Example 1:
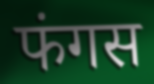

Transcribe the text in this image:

फंगस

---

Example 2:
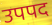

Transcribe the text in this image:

उपपद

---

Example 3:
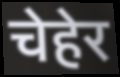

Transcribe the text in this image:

चेहेर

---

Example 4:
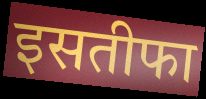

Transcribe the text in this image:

इसतीफा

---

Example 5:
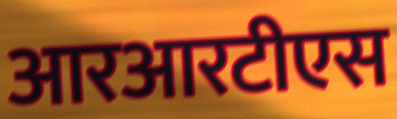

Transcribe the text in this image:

आरआरटीएस